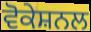
ਵੋਕੇਸ਼ਨਲ